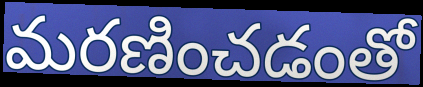
మరణించడంతో